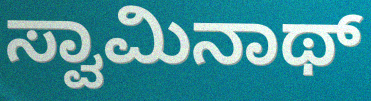
ಸ್ವಾಮಿನಾಥ್